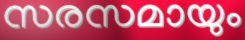
സരസമായും